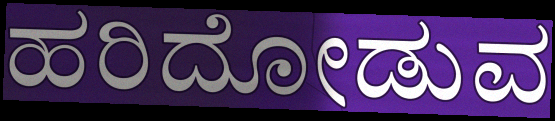
ಹರಿದೋಡುವ